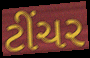
ટીંચર